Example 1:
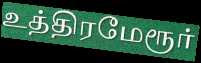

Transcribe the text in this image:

உத்திரமேரூர்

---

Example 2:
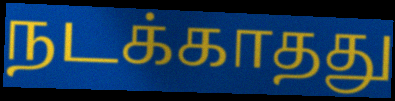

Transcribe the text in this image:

நடக்காதது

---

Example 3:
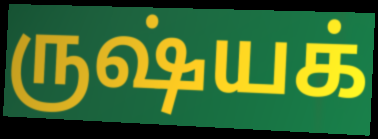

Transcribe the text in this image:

ருஷ்யக்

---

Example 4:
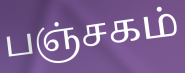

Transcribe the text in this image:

பஞ்சகம்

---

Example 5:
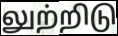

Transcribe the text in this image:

லுற்றிடு